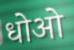
धोओ